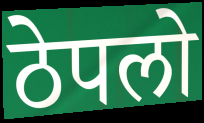
ठेपलो